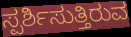
ಸ್ಪರ್ಶಿಸುತ್ತಿರುವ